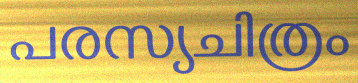
പരസ്യചിത്രം